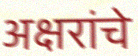
अक्षरांचे